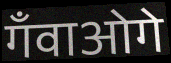
गँवाओगे